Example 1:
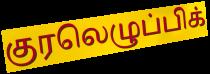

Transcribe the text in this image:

குரலெழுப்பிக்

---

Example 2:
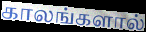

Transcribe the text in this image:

காலங்களால்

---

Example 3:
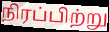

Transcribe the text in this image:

நிரப்பிற்று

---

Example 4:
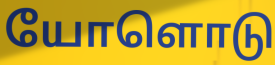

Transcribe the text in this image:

யோளொடு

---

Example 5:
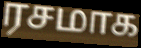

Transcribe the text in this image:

ரசமாக